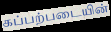
கப்பற்படையின்